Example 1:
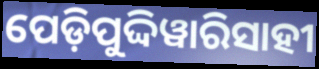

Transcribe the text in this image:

ପେଡ଼ିପୁଦ୍ଦିୱାରିସାହୀ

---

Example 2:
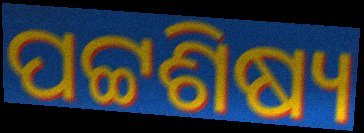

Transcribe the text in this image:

ପଟ୍ଟଶିଷ୍ୟ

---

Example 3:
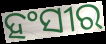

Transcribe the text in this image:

ହଂସୀର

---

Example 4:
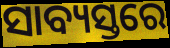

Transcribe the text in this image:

ସାବ୍ୟସ୍ତରେ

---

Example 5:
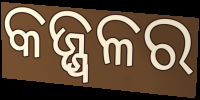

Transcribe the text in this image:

କଜ୍ଜ୍ୱଳର